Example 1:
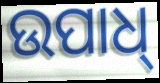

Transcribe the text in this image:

ଉପାଧ୍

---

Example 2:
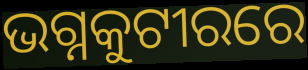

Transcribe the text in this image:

ଭଗ୍ନକୁଟୀରରେ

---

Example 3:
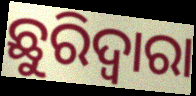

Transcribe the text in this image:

ଛୁରିଦ୍ୱାରା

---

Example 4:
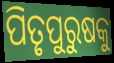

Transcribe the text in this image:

ପିତୃପୁରୁଷକୁ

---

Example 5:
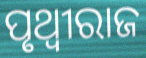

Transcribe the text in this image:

ପୃଥ୍ବୀରାଜ